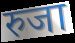
रुजा